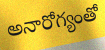
అనారోగ్యంతో